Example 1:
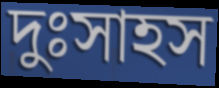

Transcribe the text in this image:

দুঃসাহস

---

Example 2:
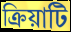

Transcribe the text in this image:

ক্রিয়াটি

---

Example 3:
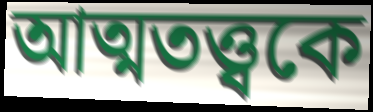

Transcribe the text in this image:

আত্মতত্ত্বকে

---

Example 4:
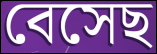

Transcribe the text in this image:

বেসেছ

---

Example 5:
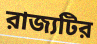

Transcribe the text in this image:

রাজ্যটির